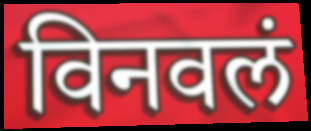
विनवलं